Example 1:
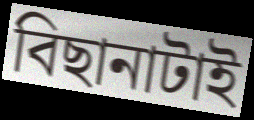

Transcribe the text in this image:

বিছানাটাই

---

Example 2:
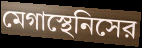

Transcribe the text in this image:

মেগাস্থেনিসের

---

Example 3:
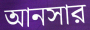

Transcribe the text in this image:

আনসার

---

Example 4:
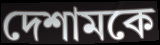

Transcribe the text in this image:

দেশামকে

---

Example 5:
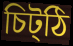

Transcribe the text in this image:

চিট্ঠি